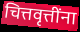
चित्तवृत्तींना